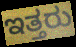
ಇತ್ತರು